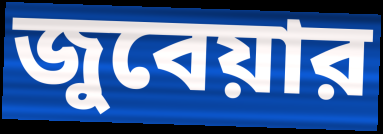
জুবেয়ার